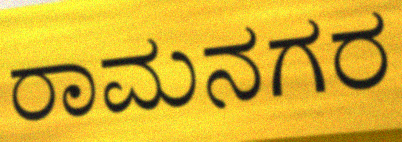
ರಾಮನಗರ